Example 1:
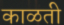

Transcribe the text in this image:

काळती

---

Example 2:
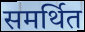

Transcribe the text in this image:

समर्थित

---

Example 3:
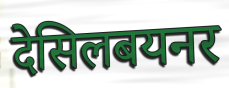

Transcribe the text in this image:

देसिलबयनर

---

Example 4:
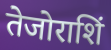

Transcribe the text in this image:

तेजोराशिं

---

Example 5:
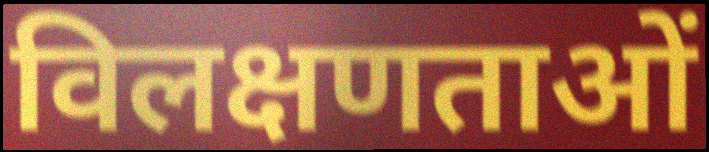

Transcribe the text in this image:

विलक्षणताओं